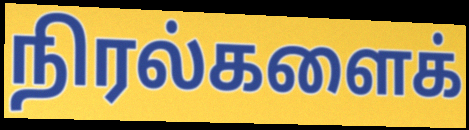
நிரல்களைக்